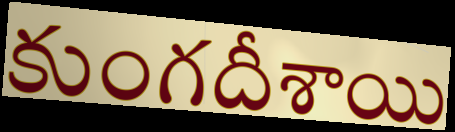
కుంగదీశాయి